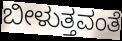
ಬೀಳುತ್ತವಂತೆ